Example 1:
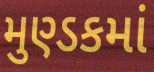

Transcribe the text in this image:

મુણ્ડકમાં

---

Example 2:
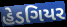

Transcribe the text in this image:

હેડગિયર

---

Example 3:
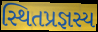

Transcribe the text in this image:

સ્થિતપ્રજ્ઞસ્ય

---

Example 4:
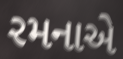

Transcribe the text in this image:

રમનાએ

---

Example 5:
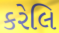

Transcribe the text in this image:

કરેલિ